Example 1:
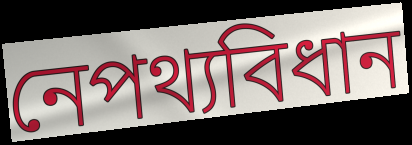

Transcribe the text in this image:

নেপথ্যবিধান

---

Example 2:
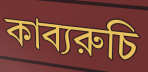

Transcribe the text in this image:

কাব্যরুচি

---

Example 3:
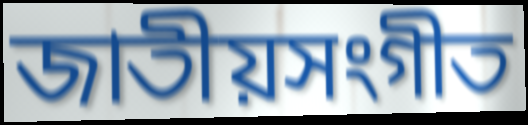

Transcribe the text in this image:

জাতীয়সংগীত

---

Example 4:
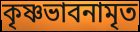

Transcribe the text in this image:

কৃষ্ণভাবনামৃত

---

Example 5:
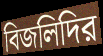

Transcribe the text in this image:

বিজলিদির